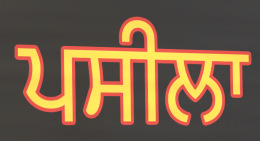
ਪਸੀਲਾ